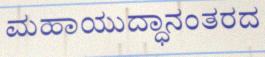
ಮಹಾಯುದ್ಧಾನಂತರದ